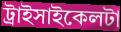
ট্রাইসাইকেলটা